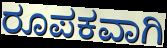
ರೂಪಕವಾಗಿ